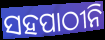
ସହପାଠୀନି